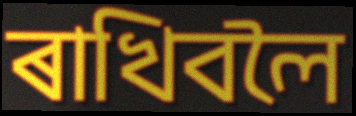
ৰাখিবলৈ